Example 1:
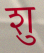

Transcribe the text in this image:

शु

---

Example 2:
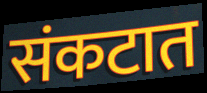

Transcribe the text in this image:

संकटात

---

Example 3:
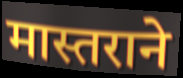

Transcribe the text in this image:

मास्तराने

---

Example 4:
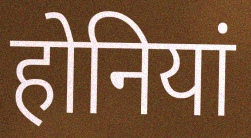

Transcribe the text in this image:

होनियां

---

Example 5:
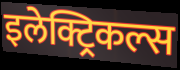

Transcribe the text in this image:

इलेक्ट्रिकल्स